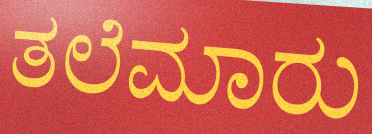
ತಲೆಮಾರು